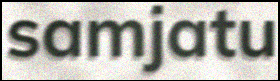
samjatu